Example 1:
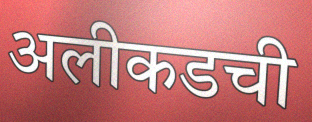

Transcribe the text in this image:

अलीकडची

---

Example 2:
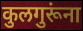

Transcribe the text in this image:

कुलगुरूंना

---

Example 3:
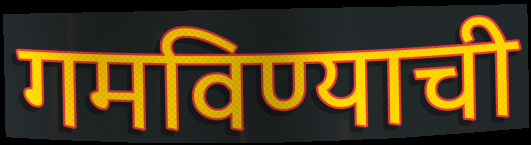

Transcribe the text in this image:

गमविण्याची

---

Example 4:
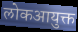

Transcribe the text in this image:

लोकआयुक्त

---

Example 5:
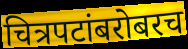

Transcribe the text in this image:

चित्रपटांबरोबरच